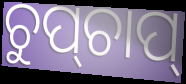
ଚୁପ୍‌ଚାପ୍